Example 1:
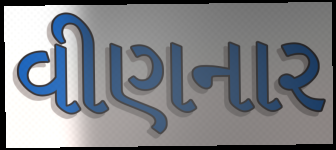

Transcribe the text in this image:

વીણનાર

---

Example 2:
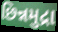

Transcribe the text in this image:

છિન્નમુદ્રા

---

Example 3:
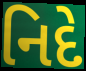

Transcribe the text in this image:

નિદે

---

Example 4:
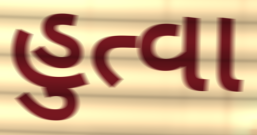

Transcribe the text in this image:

હુત્વા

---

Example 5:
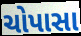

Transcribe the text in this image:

ચોપાસા